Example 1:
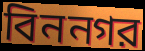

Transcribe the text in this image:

বিননগর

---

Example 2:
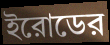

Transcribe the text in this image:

ইরোডের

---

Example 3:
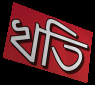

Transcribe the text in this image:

খতি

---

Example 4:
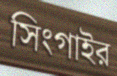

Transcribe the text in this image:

সিংগাইর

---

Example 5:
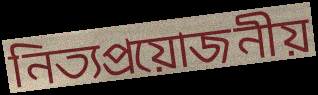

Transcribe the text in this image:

নিত্যপ্রয়োজনীয়